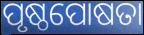
ପୃଷ୍ଠପୋଷତା